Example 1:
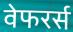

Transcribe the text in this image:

वेफरर्स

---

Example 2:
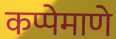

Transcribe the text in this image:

कप्पेमाणे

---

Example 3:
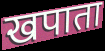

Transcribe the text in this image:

खपाता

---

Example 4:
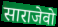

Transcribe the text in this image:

साराजेवो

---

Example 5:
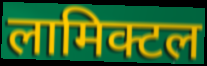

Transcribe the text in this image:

लामिक्टल